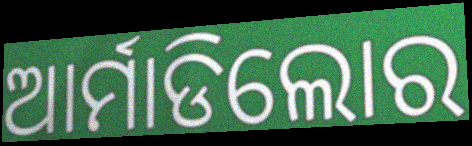
ଆର୍ମାଡିଲୋର